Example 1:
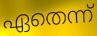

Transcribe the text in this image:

ഏതെന്ന്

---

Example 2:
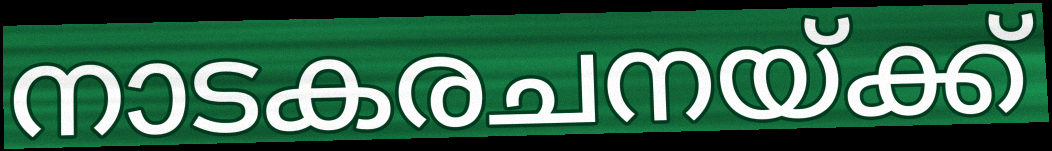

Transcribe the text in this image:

നാടകരചനയ്ക്ക്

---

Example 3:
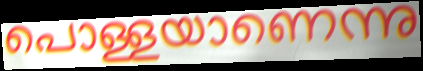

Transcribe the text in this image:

പൊള്ളയാണെന്നു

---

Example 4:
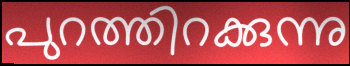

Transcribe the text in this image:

പുറത്തിറക്കുന്നു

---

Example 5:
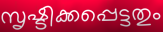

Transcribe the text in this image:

സൃഷ്ടിക്കപ്പെട്ടതും